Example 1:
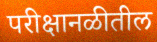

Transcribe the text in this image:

परीक्षानळीतील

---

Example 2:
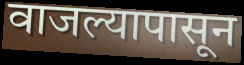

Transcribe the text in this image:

वाजल्यापासून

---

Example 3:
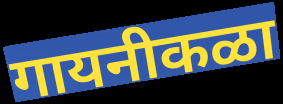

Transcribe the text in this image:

गायनीकळा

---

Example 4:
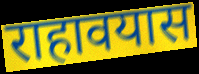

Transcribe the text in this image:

राहावयास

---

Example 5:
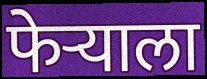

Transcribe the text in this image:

फेऱ्याला